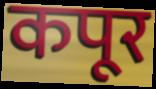
कपूर